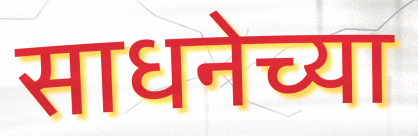
साधनेच्या